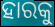
ହାରକୁ